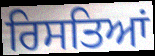
ਰਿਸਤਿਆਂ